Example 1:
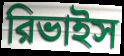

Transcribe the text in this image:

রিভাইস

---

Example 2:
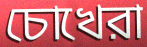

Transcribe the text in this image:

চোখেরা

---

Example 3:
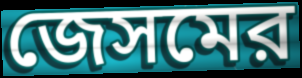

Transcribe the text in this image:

জেসমের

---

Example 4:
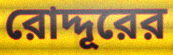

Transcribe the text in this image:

রোদ্দূরের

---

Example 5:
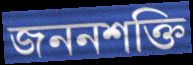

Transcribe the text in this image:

জননশক্তি